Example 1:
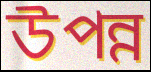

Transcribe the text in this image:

উপন্ন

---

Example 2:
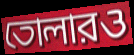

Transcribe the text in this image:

তোলারও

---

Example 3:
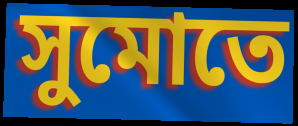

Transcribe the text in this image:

সুমোতে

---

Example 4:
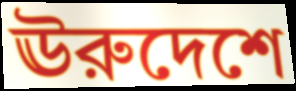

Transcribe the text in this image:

ঊরুদেশে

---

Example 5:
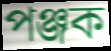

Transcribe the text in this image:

পঞ্জক